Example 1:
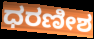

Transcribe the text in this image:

ಧರಣೀಶ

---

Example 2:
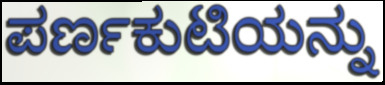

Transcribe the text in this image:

ಪರ್ಣಕುಟಿಯನ್ನು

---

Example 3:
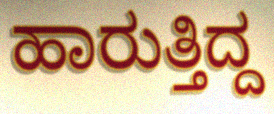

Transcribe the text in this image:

ಹಾರುತ್ತಿದ್ದ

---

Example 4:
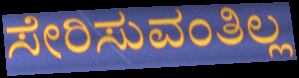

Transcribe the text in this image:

ಸೇರಿಸುವಂತಿಲ್ಲ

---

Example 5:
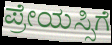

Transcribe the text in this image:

ಪ್ರೇಯಸ್ಸಿಗೆ